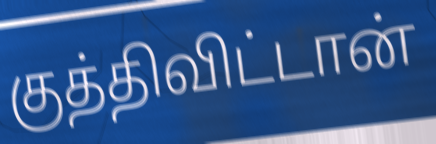
குத்திவிட்டான்